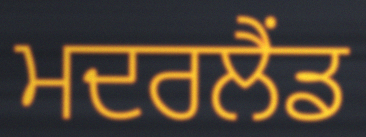
ਮਦਰਲੈਂਡ